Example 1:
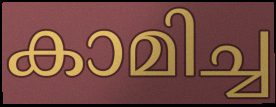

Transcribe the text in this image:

കാമിച്ച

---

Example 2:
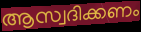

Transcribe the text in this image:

ആസ്വദിക്കണം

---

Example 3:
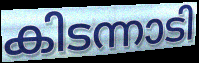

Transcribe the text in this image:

കിടന്നാടി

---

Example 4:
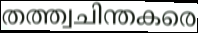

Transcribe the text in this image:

തത്ത്വചിന്തകരെ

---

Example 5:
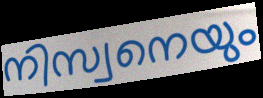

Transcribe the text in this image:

നിസ്വനെയും